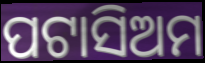
ପଟାସିଅମ